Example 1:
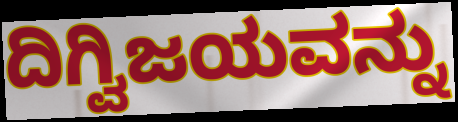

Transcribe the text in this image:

ದಿಗ್ವಿಜಯವನ್ನು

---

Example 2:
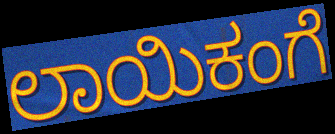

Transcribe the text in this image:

ಲಾಯಿಕಂಗೆ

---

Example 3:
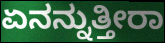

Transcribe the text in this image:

ಏನನ್ನುತ್ತೀರಾ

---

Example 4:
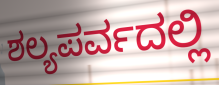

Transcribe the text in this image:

ಶಲ್ಯಪರ್ವದಲ್ಲಿ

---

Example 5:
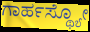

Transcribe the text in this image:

ಗಾರ್ಹಸ್ಥ್ಯೋ